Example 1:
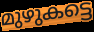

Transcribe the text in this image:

മുഴുകട്ടെ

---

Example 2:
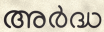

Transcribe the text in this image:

അർദ്ധ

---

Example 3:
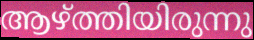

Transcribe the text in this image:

ആഴ്ത്തിയിരുന്നു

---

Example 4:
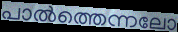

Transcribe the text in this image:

പാൽത്തെന്നലോ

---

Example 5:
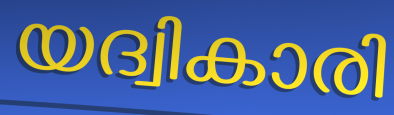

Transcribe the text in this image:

യദ്വികാരി